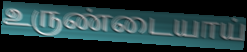
உருண்டையாய்